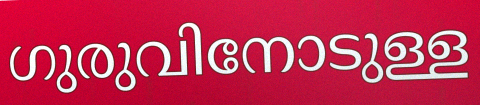
ഗുരുവിനോടുള്ള